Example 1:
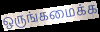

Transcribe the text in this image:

ஒருங்கமைக்க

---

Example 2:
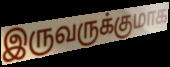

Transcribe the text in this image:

இருவருக்குமாக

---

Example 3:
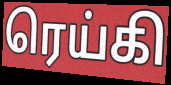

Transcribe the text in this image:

ரெய்கி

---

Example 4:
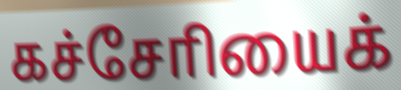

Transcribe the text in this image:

கச்சேரியைக்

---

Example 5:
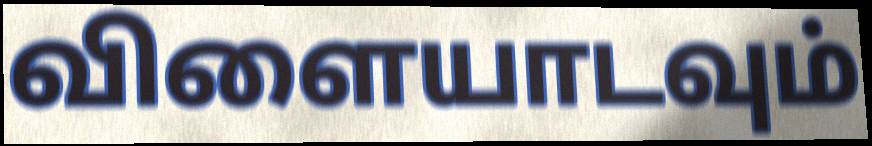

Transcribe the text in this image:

விளையாடவும்